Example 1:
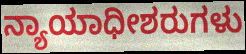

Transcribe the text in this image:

ನ್ಯಾಯಾಧೀಶರುಗಳು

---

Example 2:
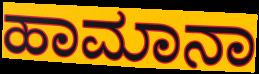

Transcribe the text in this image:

ಹಾಮಾನಾ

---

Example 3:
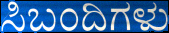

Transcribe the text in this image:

ಸಿಬಂದಿಗಳು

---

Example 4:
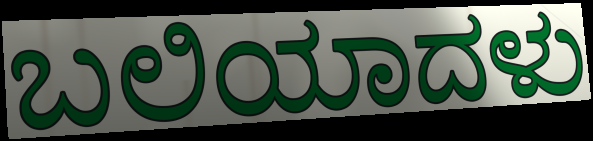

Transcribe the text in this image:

ಬಲಿಯಾದಳು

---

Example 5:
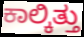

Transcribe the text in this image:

ಕಾಲ್ಕಿತ್ತು